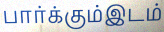
பார்க்கும்இடம்